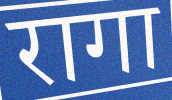
रागा